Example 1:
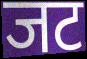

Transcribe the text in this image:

जट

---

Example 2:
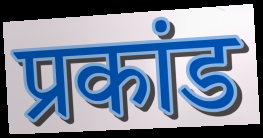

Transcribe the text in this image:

प्रकांड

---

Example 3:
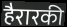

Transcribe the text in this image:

हैरारकी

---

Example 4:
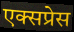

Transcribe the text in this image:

एक्‍सप्रेस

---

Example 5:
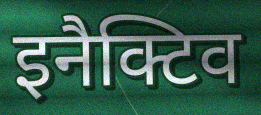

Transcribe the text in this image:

इनैक्टिव